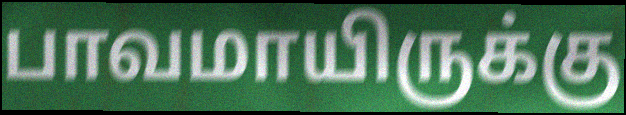
பாவமாயிருக்கு